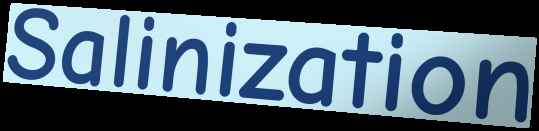
Salinization